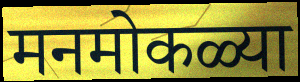
मनमोकळ्या